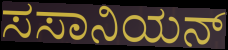
ಸಸಾನಿಯನ್